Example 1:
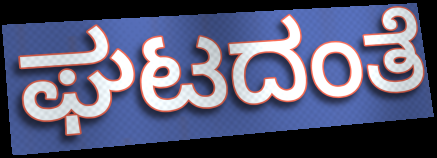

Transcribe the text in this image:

ಘಟದಂತೆ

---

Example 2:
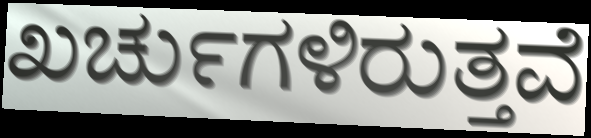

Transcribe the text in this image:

ಖರ್ಚುಗಳಿರುತ್ತವೆ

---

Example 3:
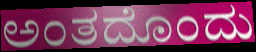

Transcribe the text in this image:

ಅಂತದೊಂದು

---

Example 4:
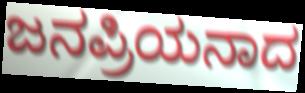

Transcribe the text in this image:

ಜನಪ್ರಿಯನಾದ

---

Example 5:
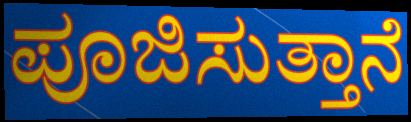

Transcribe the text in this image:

ಪೂಜಿಸುತ್ತಾನೆ